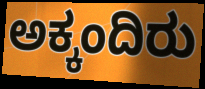
ಅಕ್ಕಂದಿರು